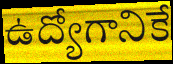
ఉద్యోగానికే